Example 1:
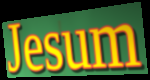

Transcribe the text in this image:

Jesum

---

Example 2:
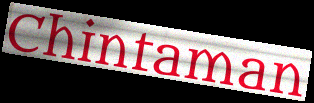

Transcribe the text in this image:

Chintaman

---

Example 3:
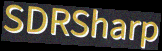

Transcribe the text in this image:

SDRSharp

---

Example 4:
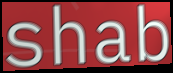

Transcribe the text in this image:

shab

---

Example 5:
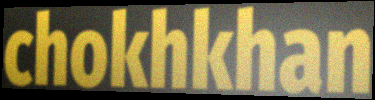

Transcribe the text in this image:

chokhkhan